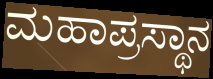
ಮಹಾಪ್ರಸ್ಥಾನ